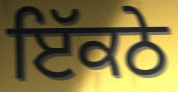
ਇੱਕਠੇ